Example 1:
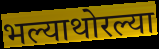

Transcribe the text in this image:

भल्याथोरल्या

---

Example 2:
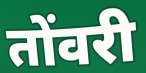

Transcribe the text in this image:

तोंवरी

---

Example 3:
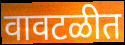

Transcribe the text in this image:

वावटळीत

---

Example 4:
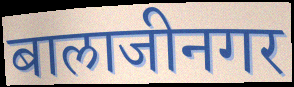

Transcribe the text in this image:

बालाजीनगर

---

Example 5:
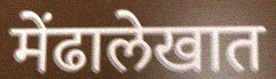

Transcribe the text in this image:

मेंढालेखात